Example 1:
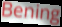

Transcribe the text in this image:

Bening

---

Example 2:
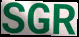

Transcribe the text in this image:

SGR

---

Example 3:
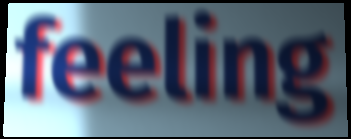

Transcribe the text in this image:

feeling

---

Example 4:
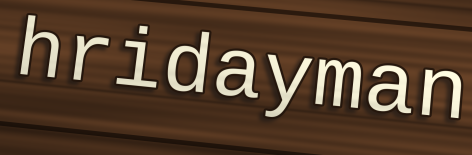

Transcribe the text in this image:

hridayman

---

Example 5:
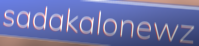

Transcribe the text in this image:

sadakalonewz